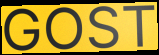
GOST